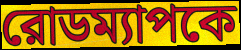
রোডম্যাপকে